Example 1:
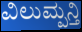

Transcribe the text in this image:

ವಿಲುಮ್ಪನ್ತಿ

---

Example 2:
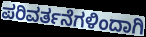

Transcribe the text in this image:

ಪರಿವರ್ತನೆಗಳಿಂದಾಗಿ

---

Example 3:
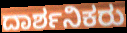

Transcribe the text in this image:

ದಾರ್ಶನಿಕರು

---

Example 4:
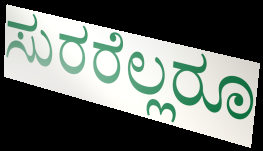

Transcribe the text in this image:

ಸುರರೆಲ್ಲರೂ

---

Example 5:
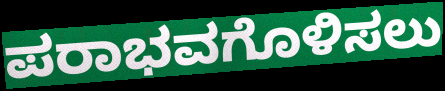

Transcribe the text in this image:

ಪರಾಭವಗೊಳಿಸಲು